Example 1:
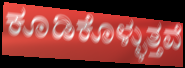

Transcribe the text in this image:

ಕೂಡಿಕೊಳ್ಳುತ್ತವೆ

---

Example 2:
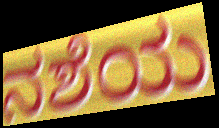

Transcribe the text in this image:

ನಶೆಯ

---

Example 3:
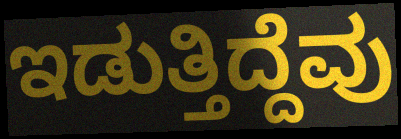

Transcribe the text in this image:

ಇಡುತ್ತಿದ್ದೆವು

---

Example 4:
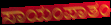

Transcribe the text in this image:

ಸಾಯಂಪಾತಂ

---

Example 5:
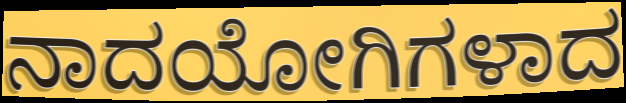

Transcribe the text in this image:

ನಾದಯೋಗಿಗಳಾದ